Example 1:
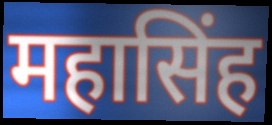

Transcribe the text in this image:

महासिंह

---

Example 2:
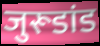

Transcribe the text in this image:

जुरूडांड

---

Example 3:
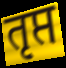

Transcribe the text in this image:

तृप्त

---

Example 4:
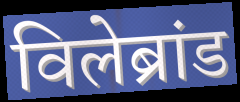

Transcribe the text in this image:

विलेब्रांड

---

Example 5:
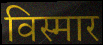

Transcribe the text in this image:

विस्मार